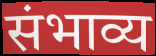
संभाव्य